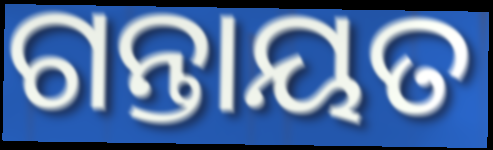
ଗନ୍ତାୟତ